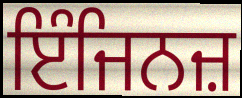
ਇੰਜਿਨਜ਼